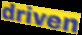
driven